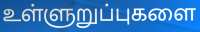
உள்ளுறுப்புகளை